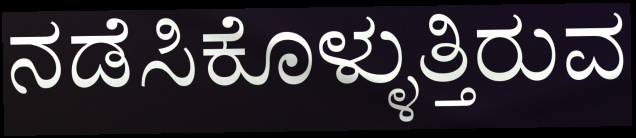
ನಡೆಸಿಕೊಳ್ಳುತ್ತಿರುವ